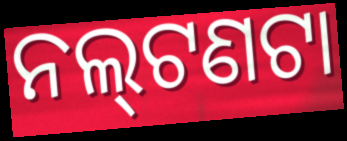
ନଲ୍‍ଟଣଟା